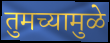
तुमच्यामुळे